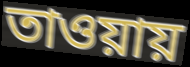
তাওয়ায়